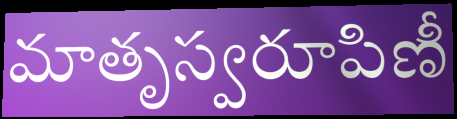
మాతృస్వరూపిణీ